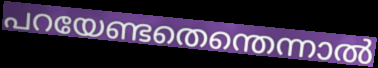
പറയേണ്ടതെന്തെന്നാൽ